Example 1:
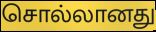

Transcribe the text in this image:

சொல்லானது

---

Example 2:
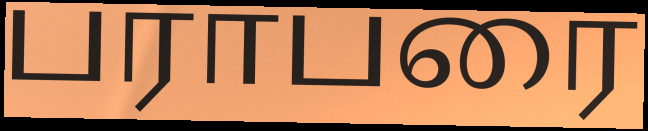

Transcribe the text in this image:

பராபரை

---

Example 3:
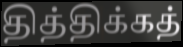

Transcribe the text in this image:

தித்திக்கத்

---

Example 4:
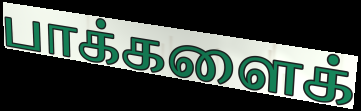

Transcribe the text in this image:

பாக்களைக்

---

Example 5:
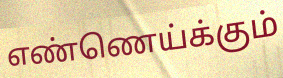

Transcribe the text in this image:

எண்ணெய்க்கும்